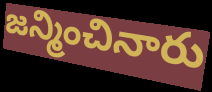
జన్మించినారు